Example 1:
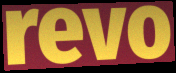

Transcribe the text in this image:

revo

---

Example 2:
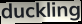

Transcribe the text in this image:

duckling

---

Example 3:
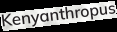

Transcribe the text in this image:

Kenyanthropus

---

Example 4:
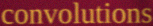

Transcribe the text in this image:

convolutions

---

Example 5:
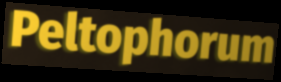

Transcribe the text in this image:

Peltophorum